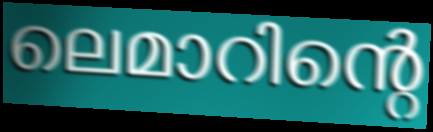
ലെമാറിന്റെ